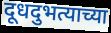
दूधदुभत्याच्या